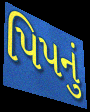
પિપનું